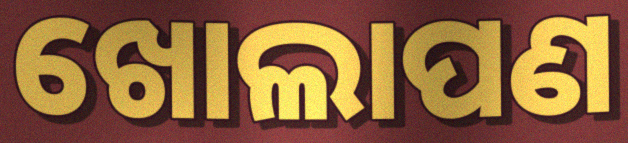
ଖୋଲାପଣ